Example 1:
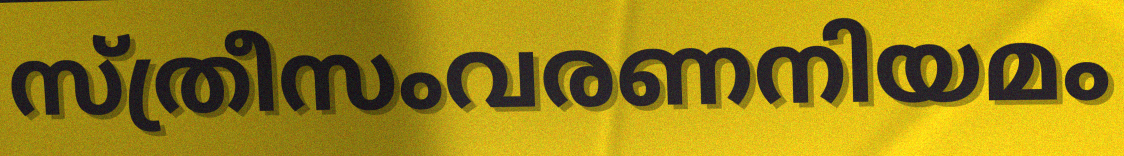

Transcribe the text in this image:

സ്ത്രീസംവരണനിയമം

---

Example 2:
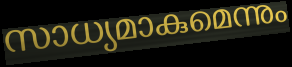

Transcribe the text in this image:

സാധ്യമാകുമെന്നും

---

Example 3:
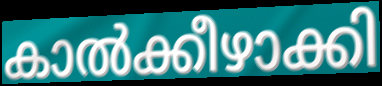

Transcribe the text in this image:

കാൽക്കീഴാക്കി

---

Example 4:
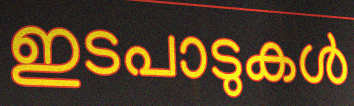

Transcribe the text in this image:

ഇടപാടുകൾ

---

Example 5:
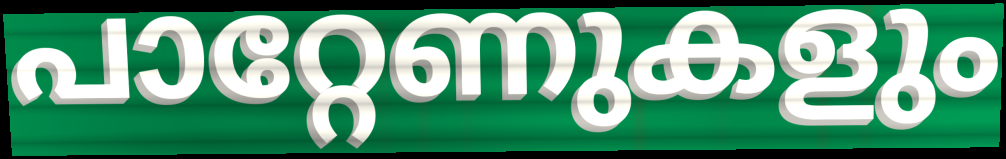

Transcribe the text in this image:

പാറ്റേണുകളും